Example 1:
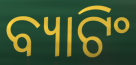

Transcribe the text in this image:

ବ୍ୟାଟିଂ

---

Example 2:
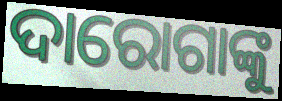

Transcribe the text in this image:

ଦାରୋଗାଙ୍କୁ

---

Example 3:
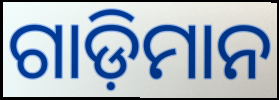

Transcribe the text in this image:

ଗାଡ଼ିମାନ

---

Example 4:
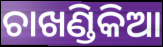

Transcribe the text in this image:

ଚାଖଣ୍ଡିକିଆ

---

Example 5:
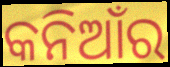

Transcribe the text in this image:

କନିଆଁର